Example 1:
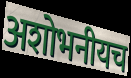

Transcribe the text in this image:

अशोभनीयच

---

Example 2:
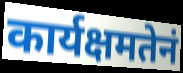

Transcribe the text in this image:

कार्यक्षमतेनं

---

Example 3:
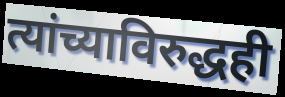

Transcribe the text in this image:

त्यांच्याविरुद्धही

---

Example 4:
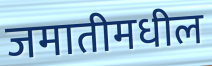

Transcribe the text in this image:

जमातीमधील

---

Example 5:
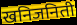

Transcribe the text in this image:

खनिजनिती